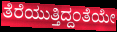
ತೆರೆಯುತ್ತಿದ್ದಂತೆಯೇ